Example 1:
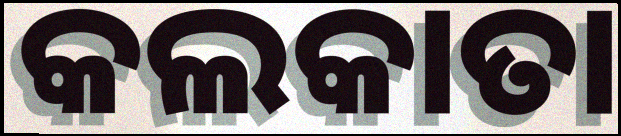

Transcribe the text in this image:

କଲକାତା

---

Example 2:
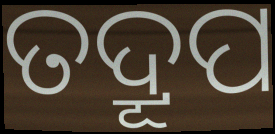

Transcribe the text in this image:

ତଦ୍ରୂପ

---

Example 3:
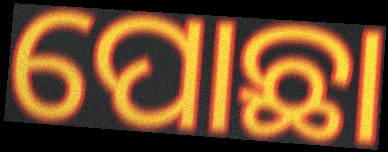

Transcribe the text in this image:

ପୋଛା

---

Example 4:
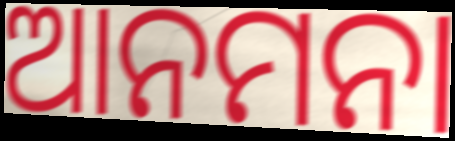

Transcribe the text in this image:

ଆନମନା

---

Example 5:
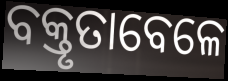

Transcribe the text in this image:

ବକ୍ତୃତାବେଳେ